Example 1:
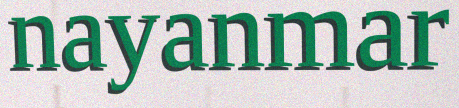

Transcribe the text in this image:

nayanmar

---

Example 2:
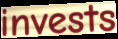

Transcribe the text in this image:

invests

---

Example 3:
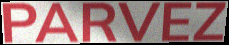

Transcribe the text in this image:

PARVEZ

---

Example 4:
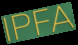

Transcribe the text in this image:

IPFA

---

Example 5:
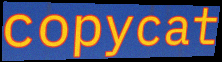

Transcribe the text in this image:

copycat